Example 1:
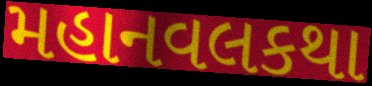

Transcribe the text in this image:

મહાનવલકથા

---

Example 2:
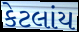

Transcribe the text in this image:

કેટલાંય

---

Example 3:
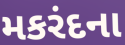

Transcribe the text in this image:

મકરંદના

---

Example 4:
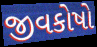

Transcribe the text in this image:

જીવકોષો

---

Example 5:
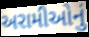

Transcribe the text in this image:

અરામીઓનું